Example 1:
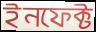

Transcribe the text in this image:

ইনফেক্ট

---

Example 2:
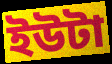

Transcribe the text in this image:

ইউটা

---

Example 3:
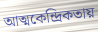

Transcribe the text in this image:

আত্মকেন্দ্রিকতায়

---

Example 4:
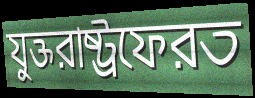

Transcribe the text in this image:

যুক্তরাষ্ট্রফেরত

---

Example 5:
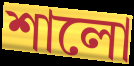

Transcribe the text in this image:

শালো